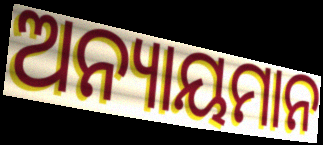
ଅନ୍ୟାୟମାନ